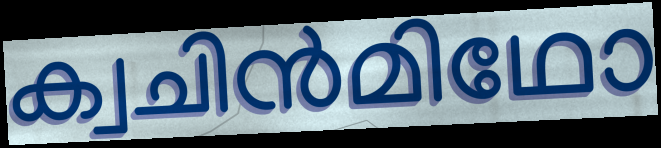
ക്വചിൻമിഥോ